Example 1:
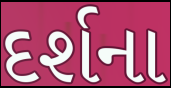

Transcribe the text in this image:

દર્શના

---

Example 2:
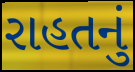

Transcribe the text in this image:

રાહતનું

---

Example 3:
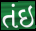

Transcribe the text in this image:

તંઇ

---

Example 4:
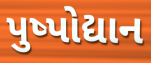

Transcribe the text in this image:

પુષ્પોદ્યાન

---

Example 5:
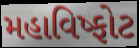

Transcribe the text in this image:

મહાવિષ્ફોટ